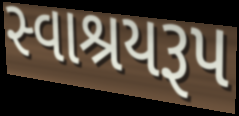
સ્વાશ્રયરૂપ